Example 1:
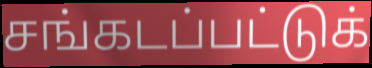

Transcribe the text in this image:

சங்கடப்பட்டுக்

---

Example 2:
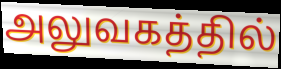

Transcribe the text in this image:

அலுவகத்தில்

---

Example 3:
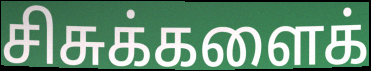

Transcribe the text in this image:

சிசுக்களைக்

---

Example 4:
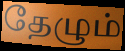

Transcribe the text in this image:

தேழும்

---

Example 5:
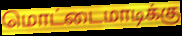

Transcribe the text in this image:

மொட்டைமாடிக்கு